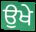
ਉਖੇ